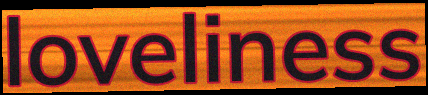
loveliness